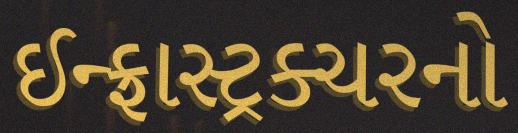
ઈન્ફ્રાસ્ટ્રક્ચરનો